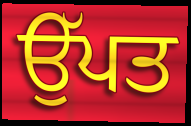
ਉੱਪਤ